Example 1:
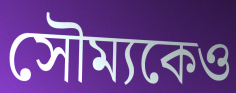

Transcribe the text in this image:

সৌম্যকেও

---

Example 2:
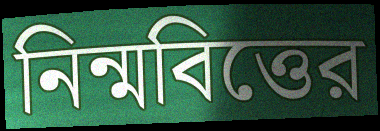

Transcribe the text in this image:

নিন্মবিত্তের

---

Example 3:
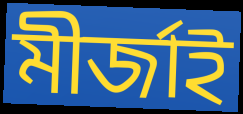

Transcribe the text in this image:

মীর্জাই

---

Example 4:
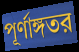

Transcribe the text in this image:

পূর্ণাঙ্গতর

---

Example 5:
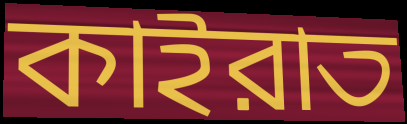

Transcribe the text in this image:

কাইরাত